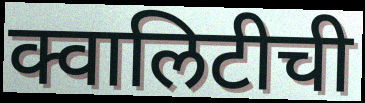
क्वालिटीची